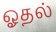
ஓதல்